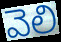
వెలి